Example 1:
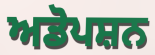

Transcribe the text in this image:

ਅਡੋਪਸ਼ਨ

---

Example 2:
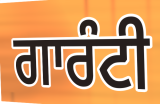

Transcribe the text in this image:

ਗਾਰੰਟੀ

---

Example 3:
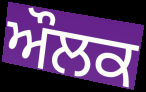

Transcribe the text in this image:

ਔਲਕ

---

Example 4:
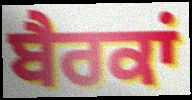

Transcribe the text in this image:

ਬੈਰਕਾਂ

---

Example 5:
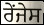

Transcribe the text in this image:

ਰੇਂਜੇਸ